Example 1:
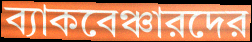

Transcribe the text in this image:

ব্যাকবেঞ্চারদের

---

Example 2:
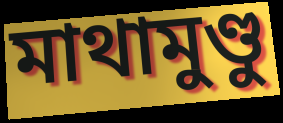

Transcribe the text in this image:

মাথামুণ্ডু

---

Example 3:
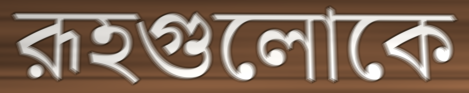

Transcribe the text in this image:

রূহগুলোকে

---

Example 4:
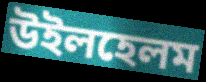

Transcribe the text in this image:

উইলহেলম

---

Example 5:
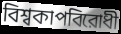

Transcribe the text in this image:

বিশ্বকাপবিরোধী